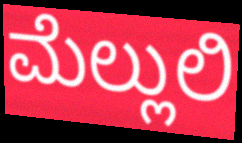
ಮೆಲ್ಲುಲಿ